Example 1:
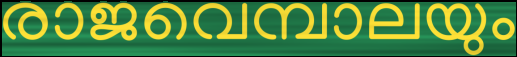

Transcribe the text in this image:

രാജവെമ്പാലയും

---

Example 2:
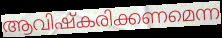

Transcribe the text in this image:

ആവിഷ്കരിക്കണമെന്ന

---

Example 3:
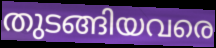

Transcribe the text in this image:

തുടങ്ങിയവരെ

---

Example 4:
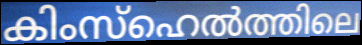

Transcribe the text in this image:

കിംസ്ഹെൽത്തിലെ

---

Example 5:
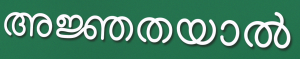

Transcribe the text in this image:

അജ്ഞതയാൽ